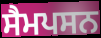
ਸੈਮਪਸਨ